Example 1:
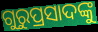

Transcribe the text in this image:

ଗୁରୁପ୍ରସାଦଙ୍କୁ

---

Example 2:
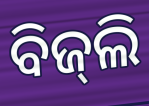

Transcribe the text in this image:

ବିଜ୍‍ଲି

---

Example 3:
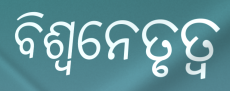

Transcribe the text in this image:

ବିଶ୍ୱନେତୃତ୍ୱ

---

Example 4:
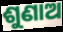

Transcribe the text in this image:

ଶୁଣାଅ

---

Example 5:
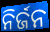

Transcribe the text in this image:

ନିର୍ଜନ